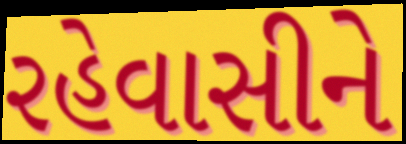
રહેવાસીને